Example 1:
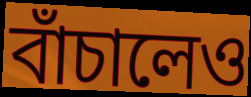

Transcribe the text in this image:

বাঁচালেও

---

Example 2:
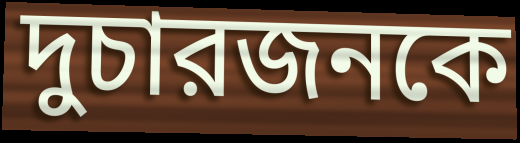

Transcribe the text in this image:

দুচারজনকে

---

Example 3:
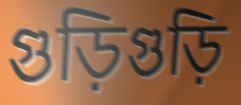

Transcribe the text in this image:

গুড়িগুড়ি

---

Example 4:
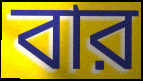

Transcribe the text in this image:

বার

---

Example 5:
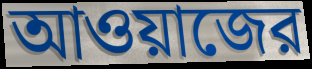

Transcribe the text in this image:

আওয়াজের